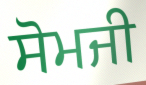
ਸੋਮਜੀ